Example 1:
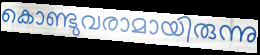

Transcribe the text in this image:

കൊണ്ടുവരാമായിരുന്നു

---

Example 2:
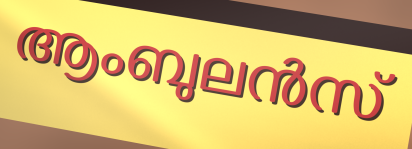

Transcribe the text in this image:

ആംബുലൻസ്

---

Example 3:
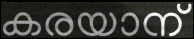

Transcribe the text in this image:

കരയാന്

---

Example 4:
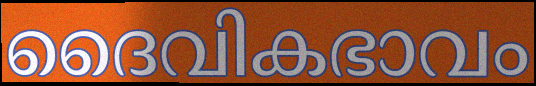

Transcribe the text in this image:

ദൈവികഭാവം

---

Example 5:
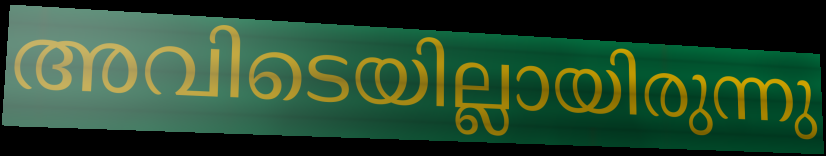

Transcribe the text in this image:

അവിടെയില്ലായിരുന്നു